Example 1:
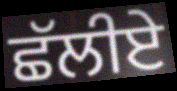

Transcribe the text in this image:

ਛੱਲੀਏ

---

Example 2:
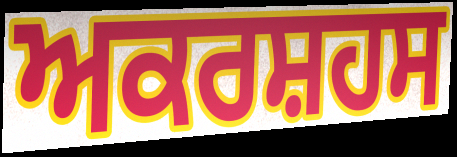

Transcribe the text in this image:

ਅਕਰਸ਼ਹਸ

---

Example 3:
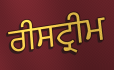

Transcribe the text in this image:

ਰੀਸਟ੍ਰੀਮ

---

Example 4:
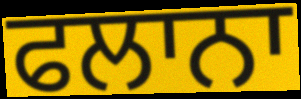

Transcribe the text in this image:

ਫਲਾਨਾ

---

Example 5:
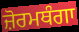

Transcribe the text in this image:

ਜ਼ੋਰਮਥੰਗਾ